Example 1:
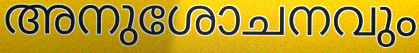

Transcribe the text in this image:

അനുശോചനവും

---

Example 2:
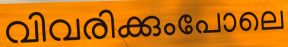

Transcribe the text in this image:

വിവരിക്കുംപോലെ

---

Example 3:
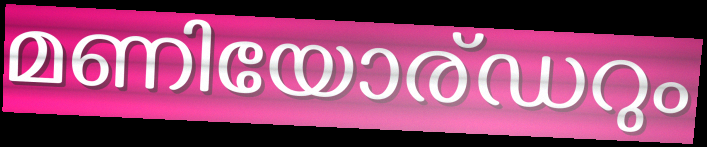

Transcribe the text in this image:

മണിയോര്ഡറും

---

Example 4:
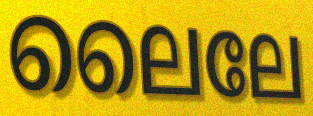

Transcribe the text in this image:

ലൈലേ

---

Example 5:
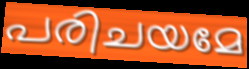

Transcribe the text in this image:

പരിചയമേ